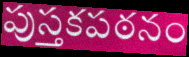
పుస్తకపఠనం